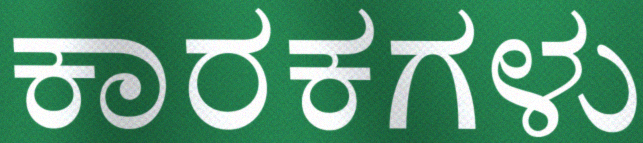
ಕಾರಕಗಳು